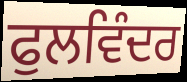
ਫੁਲਵਿੰਦਰ